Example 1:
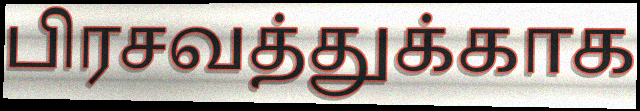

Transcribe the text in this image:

பிரசவத்துக்காக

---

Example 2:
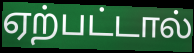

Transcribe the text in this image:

ஏற்பட்டால்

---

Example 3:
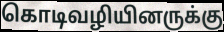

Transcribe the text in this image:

கொடிவழியினருக்கு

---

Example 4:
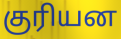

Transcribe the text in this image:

குரியன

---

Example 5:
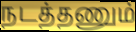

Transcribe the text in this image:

நடத்தணும்